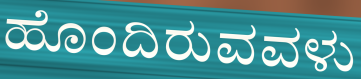
ಹೊಂದಿರುವವಳು